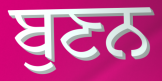
ਬੁਣਨ